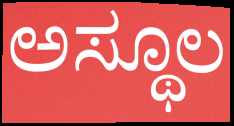
ಅಸ್ಥೂಲ